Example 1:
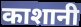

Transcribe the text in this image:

काशानी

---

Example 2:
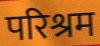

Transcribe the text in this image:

परिश्रम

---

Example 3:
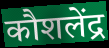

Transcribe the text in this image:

कौशलेंद्र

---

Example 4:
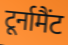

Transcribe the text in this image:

टूर्नामैंट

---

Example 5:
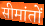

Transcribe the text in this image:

सीमांतों